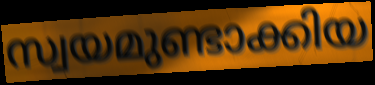
സ്വയമുണ്ടാക്കിയ